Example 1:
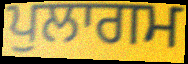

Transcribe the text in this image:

ਪੁਲਾਗਮ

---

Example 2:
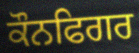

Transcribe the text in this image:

ਕੌਨਫਿਗਰ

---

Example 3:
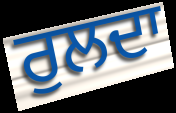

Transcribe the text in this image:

ਰੁਲਦਾ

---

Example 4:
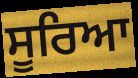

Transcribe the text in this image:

ਸੂਰਿਆ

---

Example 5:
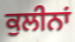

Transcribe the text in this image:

ਕੁਲੀਨਾਂ